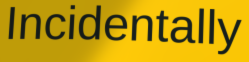
Incidentally